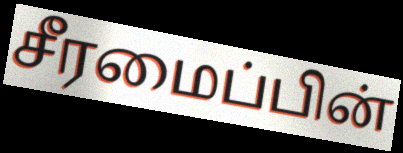
சீரமைப்பின்